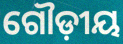
ଗୌଡ଼ୀୟ